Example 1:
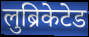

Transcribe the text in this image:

लुब्रिकेटेड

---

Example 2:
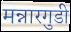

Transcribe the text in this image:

मन्नारगुडी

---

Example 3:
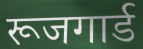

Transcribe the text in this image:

रूजगार्ड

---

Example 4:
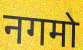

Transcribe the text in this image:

नगमो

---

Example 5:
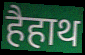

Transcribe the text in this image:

हैहाथ